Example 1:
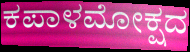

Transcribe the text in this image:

ಕಪಾಳಮೋಕ್ಷದ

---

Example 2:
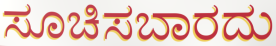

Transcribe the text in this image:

ಸೂಚಿಸಬಾರದು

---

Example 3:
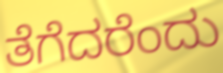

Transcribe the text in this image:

ತೆಗೆದರೆಂದು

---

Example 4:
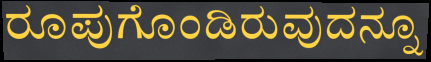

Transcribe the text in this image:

ರೂಪುಗೊಂಡಿರುವುದನ್ನೂ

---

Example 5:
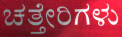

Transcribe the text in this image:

ಚತ್ತೇರಿಗಳು